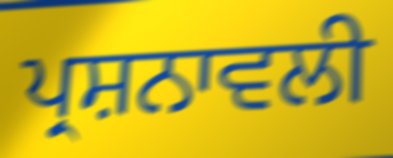
ਪ੍ਰਸ਼ਨਾਵਲੀ